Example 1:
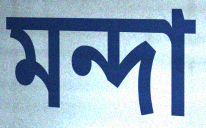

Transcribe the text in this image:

মন্দা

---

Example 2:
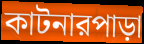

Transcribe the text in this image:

কাটনারপাড়া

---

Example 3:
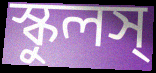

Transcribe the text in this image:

স্কুলস্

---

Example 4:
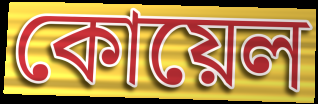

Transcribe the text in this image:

কোয়েল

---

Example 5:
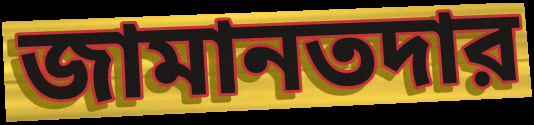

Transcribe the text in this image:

জামানতদার